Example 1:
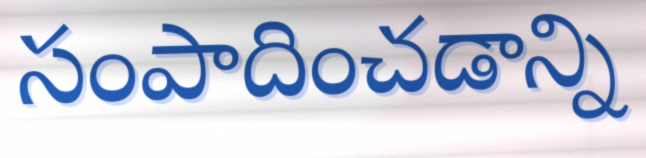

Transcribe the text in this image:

సంపాదించడాన్ని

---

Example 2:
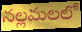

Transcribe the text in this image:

నల్లమలలో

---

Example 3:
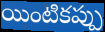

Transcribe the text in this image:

యింటికప్పు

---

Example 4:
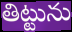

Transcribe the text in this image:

తిట్టును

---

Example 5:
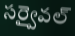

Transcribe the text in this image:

సర్వైవల్